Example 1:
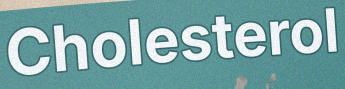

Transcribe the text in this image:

Cholesterol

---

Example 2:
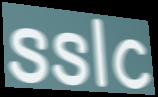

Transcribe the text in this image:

sslc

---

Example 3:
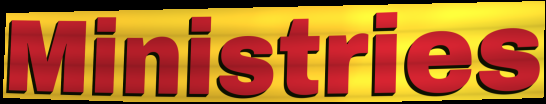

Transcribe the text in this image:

Ministries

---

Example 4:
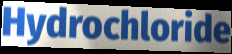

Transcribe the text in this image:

Hydrochloride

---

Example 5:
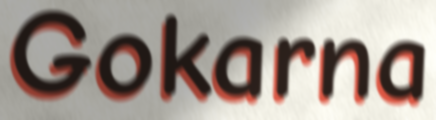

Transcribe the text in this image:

Gokarna